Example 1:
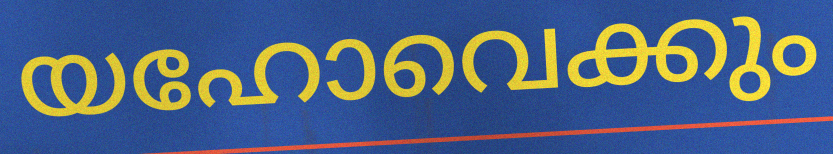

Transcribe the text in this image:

യഹോവെക്കും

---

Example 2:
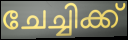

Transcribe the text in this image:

ചേച്ചിക്ക്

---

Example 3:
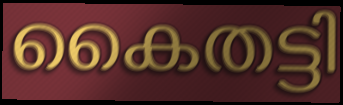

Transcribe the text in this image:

കൈതട്ടി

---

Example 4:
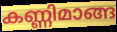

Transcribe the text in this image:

കണ്ണിമാങ്ങ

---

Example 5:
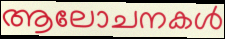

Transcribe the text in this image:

ആലോചനകൾ